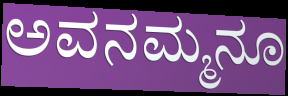
ಅವನಮ್ಮನೂ